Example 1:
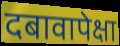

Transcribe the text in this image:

दबावापेक्षा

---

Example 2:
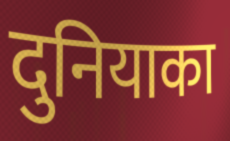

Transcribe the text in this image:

दुनियाका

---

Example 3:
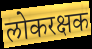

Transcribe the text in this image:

लोकरक्षक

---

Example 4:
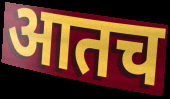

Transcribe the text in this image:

आतच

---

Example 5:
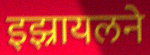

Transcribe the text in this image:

इझ्रायलने